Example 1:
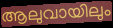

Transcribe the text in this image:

ആലുവായിലും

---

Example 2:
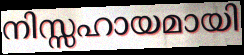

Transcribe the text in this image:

നിസ്സഹായമായി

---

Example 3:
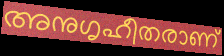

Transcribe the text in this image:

അനുഗൃഹീതരാണ്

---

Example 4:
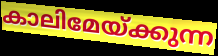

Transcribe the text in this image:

കാലിമേയ്ക്കുന്ന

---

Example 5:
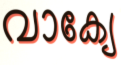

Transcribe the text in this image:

വാക്യേ